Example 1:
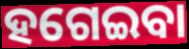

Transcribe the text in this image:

ହଗେଇବା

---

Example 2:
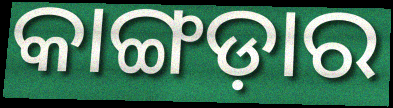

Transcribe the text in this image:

କାଙ୍ଗଡ଼ାର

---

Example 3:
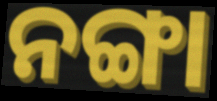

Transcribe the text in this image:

ନଙ୍ଗା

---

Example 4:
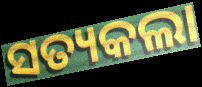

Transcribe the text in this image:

ସତ୍ୟକଲା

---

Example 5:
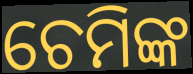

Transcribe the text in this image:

ଚେମିଙ୍କ